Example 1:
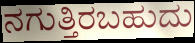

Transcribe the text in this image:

ನಗುತ್ತಿರಬಹುದು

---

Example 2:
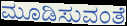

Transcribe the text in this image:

ಮೂಡಿಸುವಂತೆ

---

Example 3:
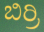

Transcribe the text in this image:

ಬಿರ್ರಿ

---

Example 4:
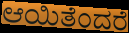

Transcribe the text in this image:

ಆಯಿತೆಂದರೆ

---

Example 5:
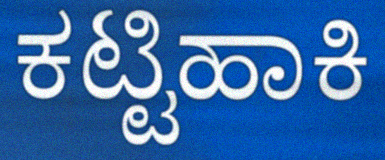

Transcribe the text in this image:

ಕಟ್ಟಿಹಾಕಿ